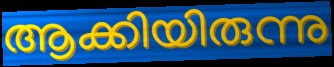
ആക്കിയിരുന്നു